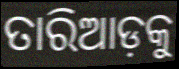
ତାରିଆଡ଼କୁ